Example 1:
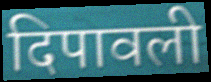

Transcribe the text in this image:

दिपावली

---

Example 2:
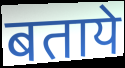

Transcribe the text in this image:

बताये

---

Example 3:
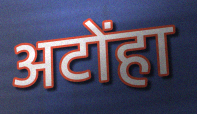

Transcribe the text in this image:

अटोंहा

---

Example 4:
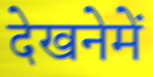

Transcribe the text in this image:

देखनेमें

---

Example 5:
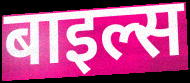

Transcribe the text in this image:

बाइल्स